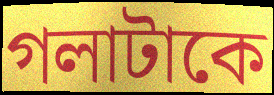
গলাটাকে